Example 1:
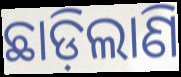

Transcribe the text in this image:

ଛାଡ଼ିଲାଣି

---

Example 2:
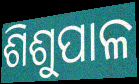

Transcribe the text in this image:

ଶିଶୁପାଳ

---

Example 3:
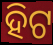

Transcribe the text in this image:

ହିଟ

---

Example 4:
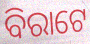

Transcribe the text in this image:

ବିରାଟେ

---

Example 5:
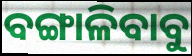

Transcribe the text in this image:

ବଙ୍ଗାଳିବାବୁ